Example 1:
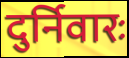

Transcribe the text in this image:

दुर्निवारः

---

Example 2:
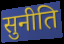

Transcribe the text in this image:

सुनीति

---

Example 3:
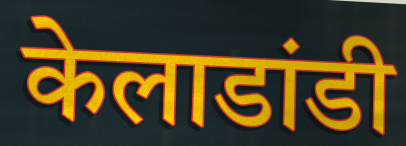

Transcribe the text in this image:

केलाडांडी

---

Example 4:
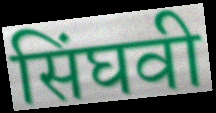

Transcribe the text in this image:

सिंघवी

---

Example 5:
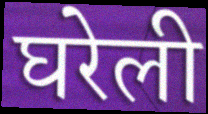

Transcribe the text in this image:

घरेली